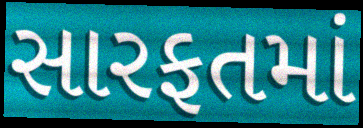
સારફતમાં